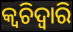
କ୍ଵଚିଦ୍ୱାରି